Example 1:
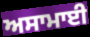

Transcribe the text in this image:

ਅਸਾਮਾਈ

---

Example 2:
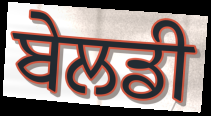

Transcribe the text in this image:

ਬੇਲਡੀ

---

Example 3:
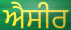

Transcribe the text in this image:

ਐਸੀਰ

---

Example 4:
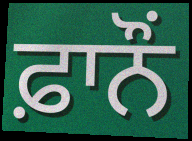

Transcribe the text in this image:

ਫ਼ਾਨੌਂ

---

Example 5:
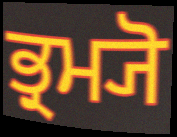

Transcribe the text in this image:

ਭ੍ਰਮ੍ਯੋ